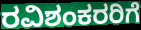
ರವಿಶಂಕರರಿಗೆ